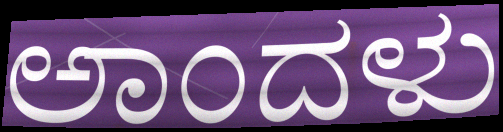
ಅಾಂದಳು